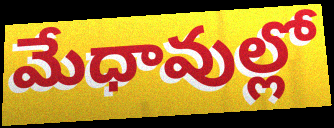
మేధావుల్లో